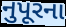
નુપૂરના